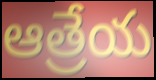
ఆత్రేయ